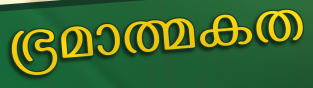
ഭ്രമാത്മകത